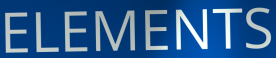
ELEMENTS